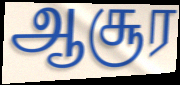
ஆசூர